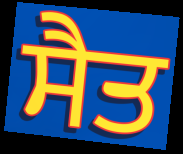
ਸੈਤ